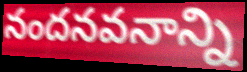
నందనవనాన్ని